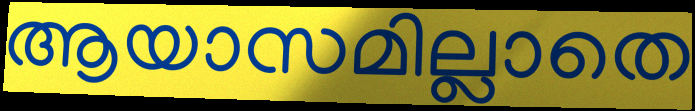
ആയാസമില്ലാതെ